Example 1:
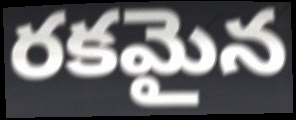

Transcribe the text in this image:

రకమైన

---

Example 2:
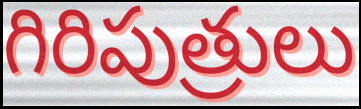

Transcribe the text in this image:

గిరిపుత్రులు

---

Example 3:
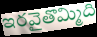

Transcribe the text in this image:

ఇరవైతొమ్మిది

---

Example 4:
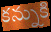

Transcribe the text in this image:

కన్నుకి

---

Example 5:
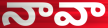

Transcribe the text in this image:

నావా